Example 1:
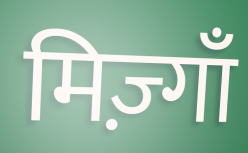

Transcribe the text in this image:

मिज़्गाँ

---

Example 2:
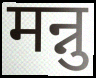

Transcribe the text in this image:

मन्नु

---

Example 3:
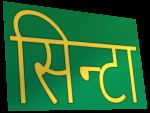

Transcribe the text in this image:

सिन्टा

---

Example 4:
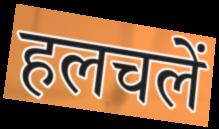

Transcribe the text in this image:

हलचलें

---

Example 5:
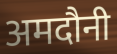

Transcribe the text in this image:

अमदौनी